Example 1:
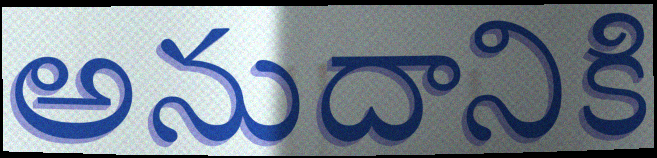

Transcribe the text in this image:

అనుదానికి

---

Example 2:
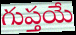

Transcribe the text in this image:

గుప్తయే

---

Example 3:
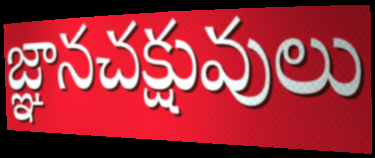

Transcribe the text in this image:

జ్ఞానచక్షువులు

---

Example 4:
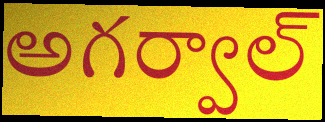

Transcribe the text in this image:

అగర్వాల్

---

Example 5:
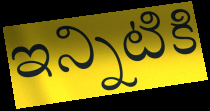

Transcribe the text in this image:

ఇన్నిటికి